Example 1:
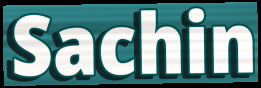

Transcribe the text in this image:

Sachin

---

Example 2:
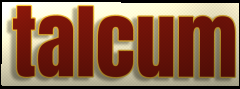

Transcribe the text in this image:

talcum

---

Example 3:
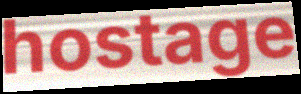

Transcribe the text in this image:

hostage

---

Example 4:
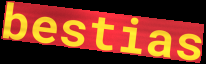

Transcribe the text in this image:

bestias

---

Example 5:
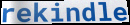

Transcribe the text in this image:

rekindle